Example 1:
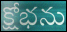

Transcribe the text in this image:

క్షోభను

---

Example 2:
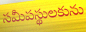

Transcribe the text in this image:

సమీపస్థులకును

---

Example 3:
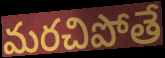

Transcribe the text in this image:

మరచిపోతే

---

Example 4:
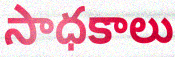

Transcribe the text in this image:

సాధకాలు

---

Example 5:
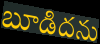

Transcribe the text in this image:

బూడిదను